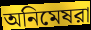
অনিমেষরা